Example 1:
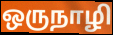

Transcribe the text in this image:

ஒருநாழி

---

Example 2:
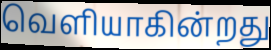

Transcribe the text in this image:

வெளியாகின்றது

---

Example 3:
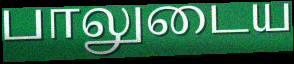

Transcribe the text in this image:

பாலுடைய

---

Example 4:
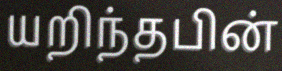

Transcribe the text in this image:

யறிந்தபின்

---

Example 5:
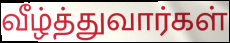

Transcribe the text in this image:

வீழ்த்துவார்கள்